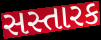
સસ્તારક